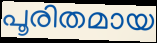
പൂരിതമായ